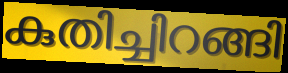
കുതിച്ചിറങ്ങി